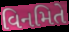
વિનમિતે